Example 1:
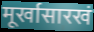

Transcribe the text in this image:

मूर्खासारखं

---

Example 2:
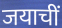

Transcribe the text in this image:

जयाचीं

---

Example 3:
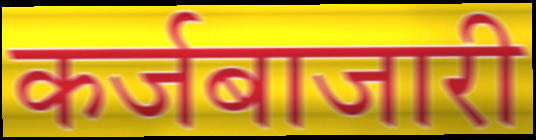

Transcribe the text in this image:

कर्जबाजारी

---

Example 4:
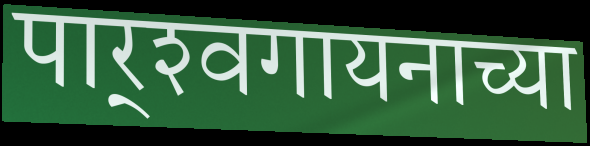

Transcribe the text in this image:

पार्श्वगायनाच्या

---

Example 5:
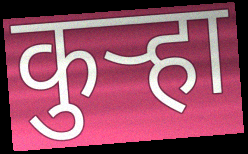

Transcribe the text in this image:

कुऱ्हा